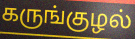
கருங்குழல்